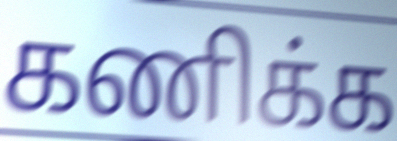
கணிக்க